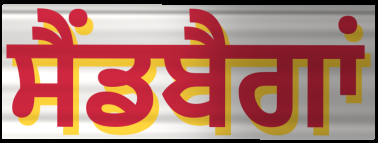
ਸੈਂਡਬੈਗਾਂ